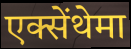
एक्सेंथेमा